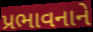
પ્રભાવનાને